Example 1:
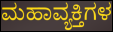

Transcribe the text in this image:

ಮಹಾವ್ಯಕ್ತಿಗಳ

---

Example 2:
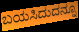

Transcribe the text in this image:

ಬಯಸಿದುದನ್ನೂ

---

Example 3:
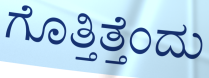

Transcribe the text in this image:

ಗೊತ್ತಿತ್ತೆಂದು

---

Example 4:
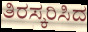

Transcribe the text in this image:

ತಿರಸ್ಕರಿಸಿದ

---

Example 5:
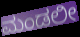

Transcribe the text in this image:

ಮಂಡಲೀ